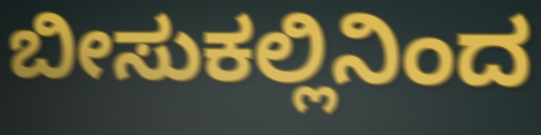
ಬೀಸುಕಲ್ಲಿನಿಂದ